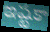
ఇష్టకా